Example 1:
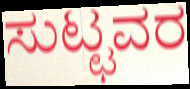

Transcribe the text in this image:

ಸುಟ್ಟವರ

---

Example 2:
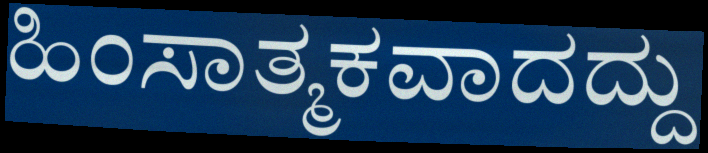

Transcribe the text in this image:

ಹಿಂಸಾತ್ಮಕವಾದದ್ದು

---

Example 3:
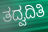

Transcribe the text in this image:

ತದ್ವದಿತಿ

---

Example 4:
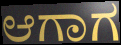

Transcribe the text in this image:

ಆಗಾಗ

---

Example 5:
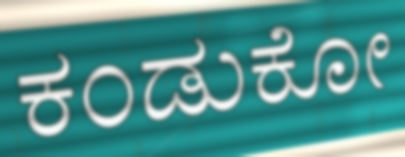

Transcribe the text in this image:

ಕಂಡುಕೋ